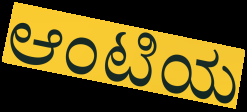
ಆಂಟಿಯ